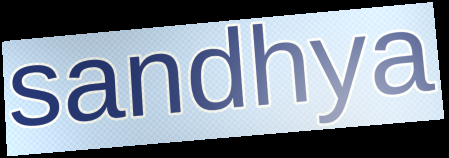
sandhya